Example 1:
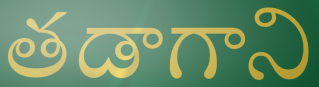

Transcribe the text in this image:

తడాగాని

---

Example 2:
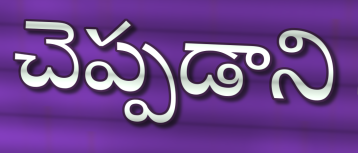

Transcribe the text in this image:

చెప్పడాని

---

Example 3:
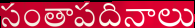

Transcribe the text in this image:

సంతాపదినాలు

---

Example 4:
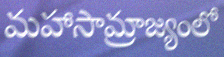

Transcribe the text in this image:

మహాసామ్రాజ్యంలో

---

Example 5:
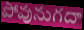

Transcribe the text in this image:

పోవునుగదా